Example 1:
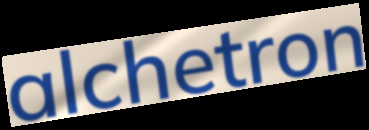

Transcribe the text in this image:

alchetron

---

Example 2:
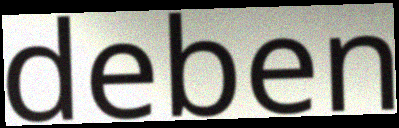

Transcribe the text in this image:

deben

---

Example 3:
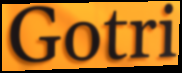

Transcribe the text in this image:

Gotri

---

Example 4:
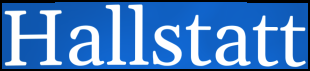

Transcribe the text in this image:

Hallstatt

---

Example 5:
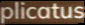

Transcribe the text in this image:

plicatus